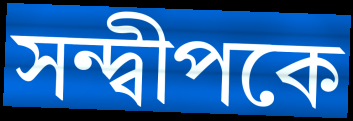
সন্দ্বীপকে